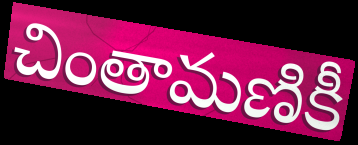
చింతామణికీ